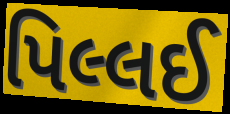
પિલ્લઈ